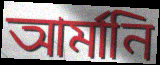
আর্মানি